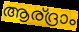
ആര്ദ്രാം